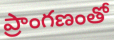
ప్రాంగణంతో